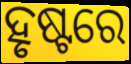
ହୃଷ୍ଟରେ